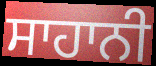
ਸਾਹਾਨੀ